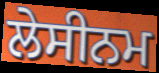
ਲੇਸੀਨਮ